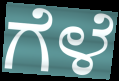
ಗೆಳೆ